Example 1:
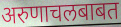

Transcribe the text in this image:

अरुणाचलबाबत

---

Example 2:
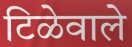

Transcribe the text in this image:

टिळेवाले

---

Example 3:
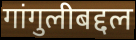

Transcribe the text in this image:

गांगुलीबद्दल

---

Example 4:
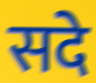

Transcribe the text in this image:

सदे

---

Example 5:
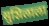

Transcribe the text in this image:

सुशिलाला